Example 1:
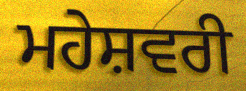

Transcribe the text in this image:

ਮਹੇਸ਼ਵਰੀ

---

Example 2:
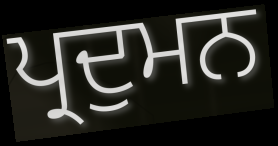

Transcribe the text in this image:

ਪ੍ਰਦੁਮਨ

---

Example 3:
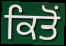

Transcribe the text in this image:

ਕਿਤੋਂ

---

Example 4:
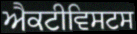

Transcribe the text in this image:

ਐਕਟੀਵਿਸਟਸ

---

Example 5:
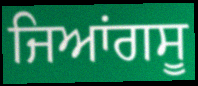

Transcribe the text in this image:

ਜਿਆਂਗਸੂ